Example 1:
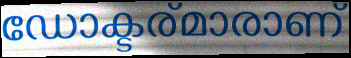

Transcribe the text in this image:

ഡോക്ടര്മാരാണ്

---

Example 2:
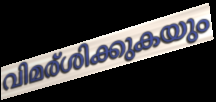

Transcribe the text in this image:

വിമര്ശിക്കുകയും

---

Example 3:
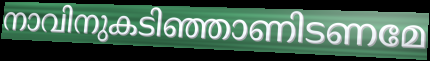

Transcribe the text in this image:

നാവിനുകടിഞ്ഞാണിടണമേ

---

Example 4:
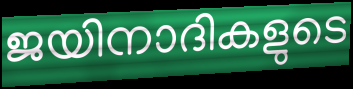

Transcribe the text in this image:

ജയിനാദികളുടെ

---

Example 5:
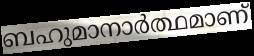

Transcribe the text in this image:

ബഹുമാനാർത്ഥമാണ്